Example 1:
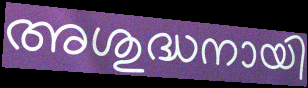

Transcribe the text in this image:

അശുദ്ധനായി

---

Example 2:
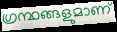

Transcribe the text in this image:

ഗ്രന്ഥങ്ങളുമാണ്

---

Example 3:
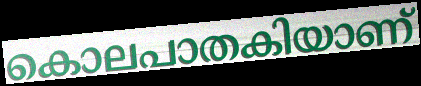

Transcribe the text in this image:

കൊലപാതകിയാണ്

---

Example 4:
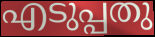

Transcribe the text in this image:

എടുപ്പതു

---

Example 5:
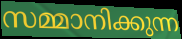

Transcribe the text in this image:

സമ്മാനിക്കുന്ന